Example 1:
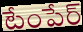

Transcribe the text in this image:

టేంపేర్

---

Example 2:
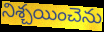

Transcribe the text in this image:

నిశ్చయించెను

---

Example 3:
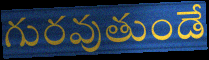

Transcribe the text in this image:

గురవుతుండే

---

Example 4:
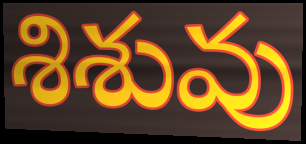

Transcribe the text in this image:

శిశువు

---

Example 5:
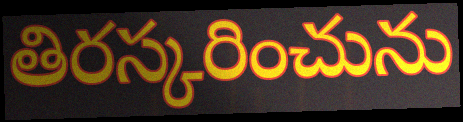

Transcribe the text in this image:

తిరస్కరించును